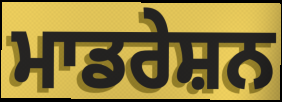
ਮਾਡਰੇਸ਼ਨ